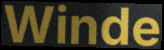
Winde